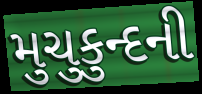
મુચુકુન્દની